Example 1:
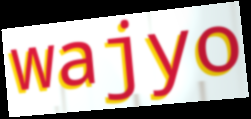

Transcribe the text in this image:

wajyo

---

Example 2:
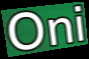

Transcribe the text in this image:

Oni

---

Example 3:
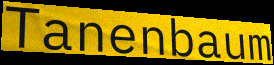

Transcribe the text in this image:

Tanenbaum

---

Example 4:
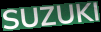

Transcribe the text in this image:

SUZUKI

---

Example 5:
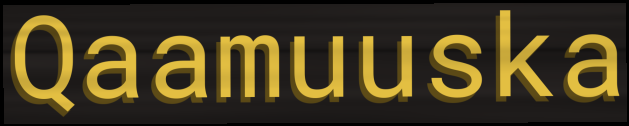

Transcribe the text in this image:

Qaamuuska